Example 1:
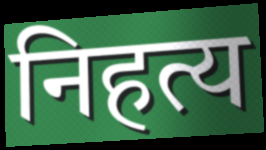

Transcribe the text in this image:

निहत्य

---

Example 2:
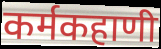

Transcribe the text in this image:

कर्मकहाणी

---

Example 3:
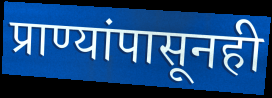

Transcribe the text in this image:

प्राण्यांपासूनही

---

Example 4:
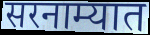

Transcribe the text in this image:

सरनाम्यात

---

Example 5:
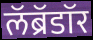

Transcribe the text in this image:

लॅब्रॅडॉर